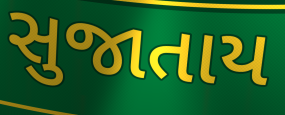
સુજાતાય